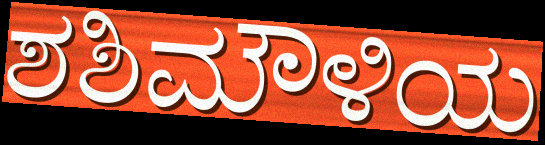
ಶಶಿಮೌಳಿಯ